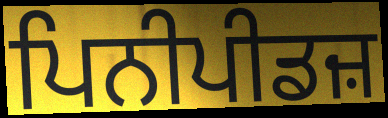
ਪਿਨੀਪੀਡਜ਼